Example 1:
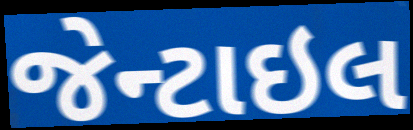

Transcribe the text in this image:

જેન્ટાઇલ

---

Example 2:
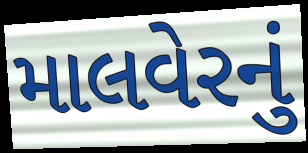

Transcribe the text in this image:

માલવેરનું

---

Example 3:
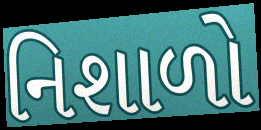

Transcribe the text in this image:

નિશાળો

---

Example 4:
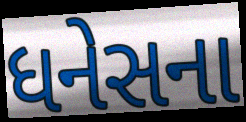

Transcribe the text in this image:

ધનેસના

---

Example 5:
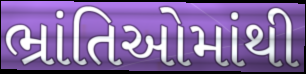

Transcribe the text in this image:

ભ્રાંતિઓમાંથી